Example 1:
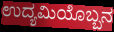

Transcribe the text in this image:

ಉದ್ಯಮಿಯೊಬ್ಬನ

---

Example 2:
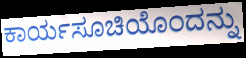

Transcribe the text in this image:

ಕಾರ್ಯಸೂಚಿಯೊಂದನ್ನು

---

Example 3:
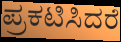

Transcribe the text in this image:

ಪ್ರಕಟಿಸಿದರೆ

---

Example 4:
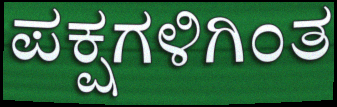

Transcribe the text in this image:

ಪಕ್ಷಗಳಿಗಿಂತ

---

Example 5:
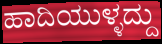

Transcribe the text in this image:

ಹಾದಿಯುಳ್ಳದ್ದು